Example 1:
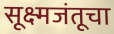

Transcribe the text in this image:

सूक्ष्मजंतूचा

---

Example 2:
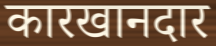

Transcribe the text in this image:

कारखानदार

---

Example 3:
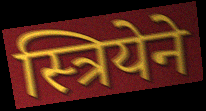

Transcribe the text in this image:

स्त्रियेने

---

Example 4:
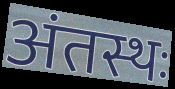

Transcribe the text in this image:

अंतस्थः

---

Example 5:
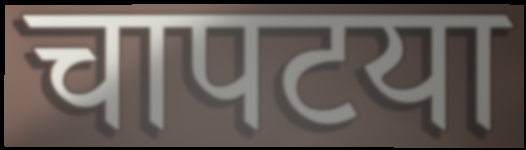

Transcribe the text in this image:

चापटया